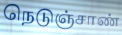
நெடுஞ்சாண்